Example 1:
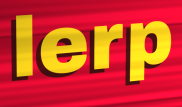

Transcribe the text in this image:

lerp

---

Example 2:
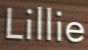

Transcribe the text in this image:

Lillie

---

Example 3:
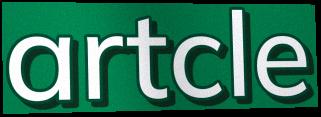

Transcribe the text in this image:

artcle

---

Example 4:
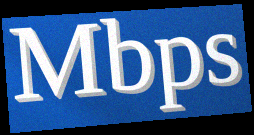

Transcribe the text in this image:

Mbps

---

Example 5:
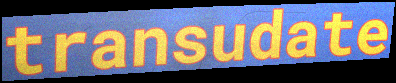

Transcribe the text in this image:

transudate